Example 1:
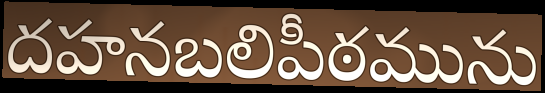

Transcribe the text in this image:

దహనబలిపీఠమును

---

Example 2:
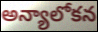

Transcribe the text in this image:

అన్యాలోకన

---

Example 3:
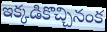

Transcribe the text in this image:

ఇక్కడికొచ్చినంక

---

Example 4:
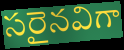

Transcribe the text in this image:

సరైనవిగా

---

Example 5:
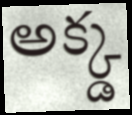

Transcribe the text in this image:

అక్క్డ